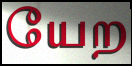
யேற